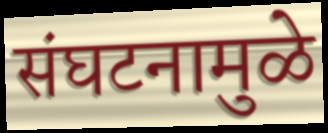
संघटनामुळे